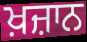
ਖ਼ਜ਼ਾਨ